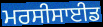
ਮਰਸੀਸਾਈਡ